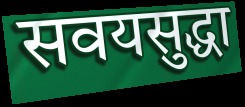
सवयसुद्धा